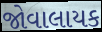
જોવાલાયક